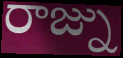
రాజ్ను